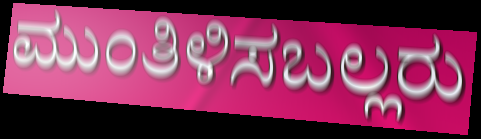
ಮುಂತಿಳಿಸಬಲ್ಲರು